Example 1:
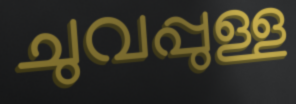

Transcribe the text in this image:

ചുവപ്പുള്ള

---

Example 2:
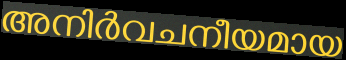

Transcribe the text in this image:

അനിർവചനീയമായ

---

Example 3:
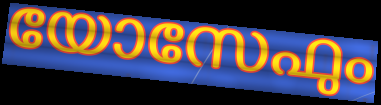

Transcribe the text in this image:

യോസേഫും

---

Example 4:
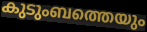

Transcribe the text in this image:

കുടുംബത്തെയും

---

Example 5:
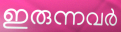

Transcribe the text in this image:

ഇരുന്നവർ